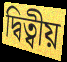
দ্বিত্বীয়